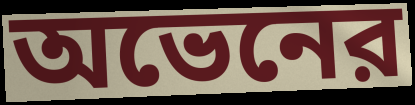
অভেনের